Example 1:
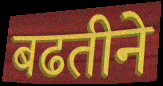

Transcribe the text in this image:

बढतीने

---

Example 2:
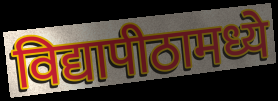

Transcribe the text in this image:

विद्यापीठामध्ये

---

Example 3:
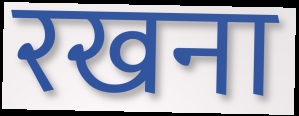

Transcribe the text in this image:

रखना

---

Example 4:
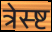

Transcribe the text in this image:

त्रेस्ष्ट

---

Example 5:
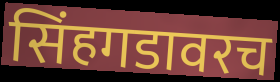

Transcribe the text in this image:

सिंहगडावरच